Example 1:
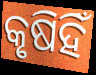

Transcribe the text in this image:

କୃଷିହିଁ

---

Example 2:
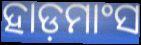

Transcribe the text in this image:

ହାଡ଼ମାଂସ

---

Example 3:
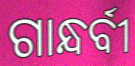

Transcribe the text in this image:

ଗାନ୍ଧର୍ବୀ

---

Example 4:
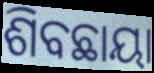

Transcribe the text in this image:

ଶିବଛାୟା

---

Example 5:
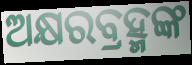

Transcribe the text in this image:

ଅକ୍ଷରବ୍ରହ୍ମଙ୍କ